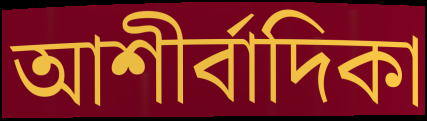
আশীর্বাদিকা